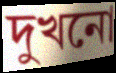
দুখনো